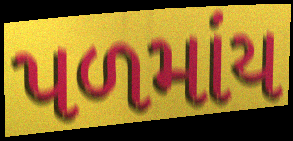
પળમાંય